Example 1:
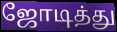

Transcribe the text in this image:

ஜோடித்து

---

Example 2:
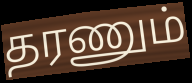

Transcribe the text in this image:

தரணும்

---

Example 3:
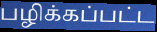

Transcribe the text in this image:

பழிக்கப்பட்ட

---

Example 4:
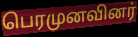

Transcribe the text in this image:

பெரமுனவினர்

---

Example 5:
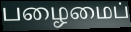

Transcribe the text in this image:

பழைமைப்